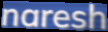
naresh